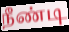
நீண்டி